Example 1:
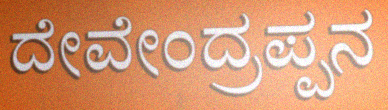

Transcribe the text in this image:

ದೇವೇಂದ್ರಪ್ಪನ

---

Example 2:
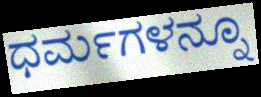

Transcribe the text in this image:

ಧರ್ಮಗಳನ್ನೂ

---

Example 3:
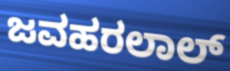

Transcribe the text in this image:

ಜವಹರಲಾಲ್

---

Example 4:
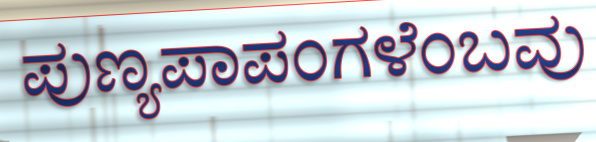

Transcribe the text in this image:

ಪುಣ್ಯಪಾಪಂಗಳೆಂಬವು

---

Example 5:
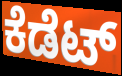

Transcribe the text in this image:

ಕೆಡೆಟ್